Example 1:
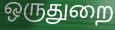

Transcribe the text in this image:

ஒருதுறை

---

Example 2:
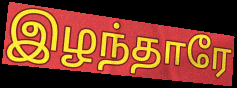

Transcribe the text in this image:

இழந்தாரே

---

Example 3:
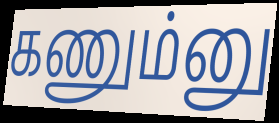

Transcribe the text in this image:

கணும்னு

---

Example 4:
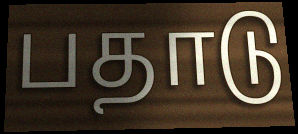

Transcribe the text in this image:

பதாடு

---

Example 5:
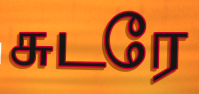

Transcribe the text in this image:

சுடரே